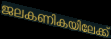
ജലകണികയിലേക്ക്